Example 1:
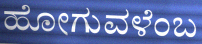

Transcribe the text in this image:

ಹೋಗುವಳೆಂಬ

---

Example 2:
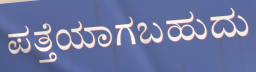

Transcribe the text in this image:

ಪತ್ತೆಯಾಗಬಹುದು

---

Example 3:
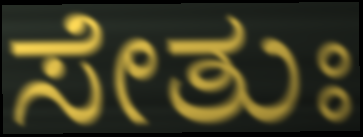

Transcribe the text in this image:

ಸೇತುಃ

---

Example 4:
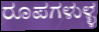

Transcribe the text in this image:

ರೂಪಗಳುಳ್ಳ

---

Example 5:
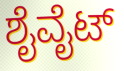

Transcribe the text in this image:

ಶೈವೈಟ್